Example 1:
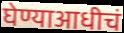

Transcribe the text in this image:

घेण्याआधीचं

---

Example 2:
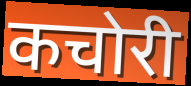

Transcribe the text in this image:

कचोरी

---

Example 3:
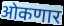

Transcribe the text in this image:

ओकणार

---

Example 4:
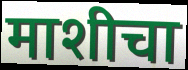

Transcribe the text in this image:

माशीचा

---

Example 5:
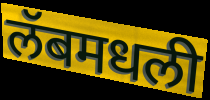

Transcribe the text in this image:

लॅबमधली